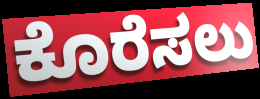
ಕೊರೆಸಲು